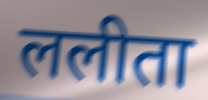
ललीता